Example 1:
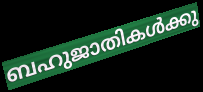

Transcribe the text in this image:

ബഹുജാതികൾക്കു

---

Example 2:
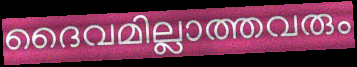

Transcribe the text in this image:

ദൈവമില്ലാത്തവരും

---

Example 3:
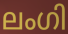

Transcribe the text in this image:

ലംഗി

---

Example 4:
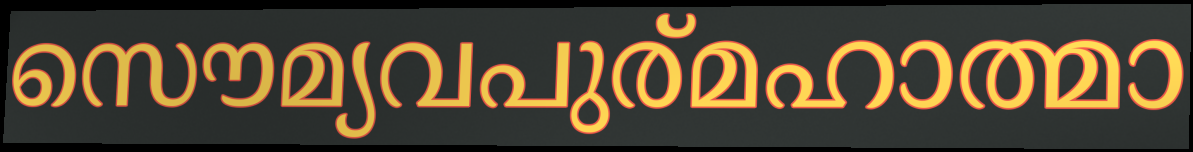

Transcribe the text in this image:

സൌമ്യവപുര്മഹാത്മാ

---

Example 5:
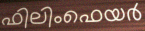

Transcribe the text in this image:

ഫിലിംഫെയർ